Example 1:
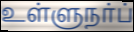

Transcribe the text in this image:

உள்ளுநர்ப்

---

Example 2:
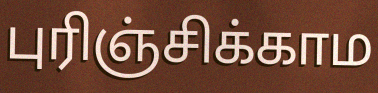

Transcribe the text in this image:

புரிஞ்சிக்காம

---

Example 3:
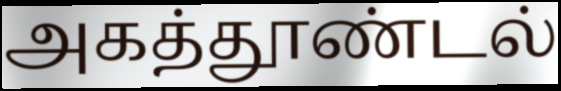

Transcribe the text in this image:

அகத்தூண்டல்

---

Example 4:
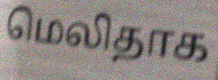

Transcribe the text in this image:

மெலிதாக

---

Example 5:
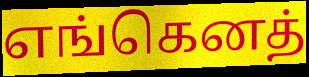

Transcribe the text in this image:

எங்கெனத்